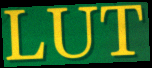
LUT